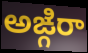
అఙ్గిరా